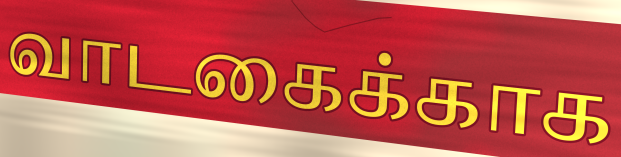
வாடகைக்காக